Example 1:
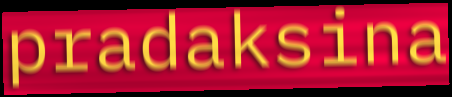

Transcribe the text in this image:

pradaksina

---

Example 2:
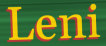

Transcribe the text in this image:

Leni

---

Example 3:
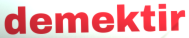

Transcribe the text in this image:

demektir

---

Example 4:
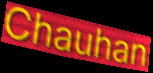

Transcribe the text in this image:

Chauhan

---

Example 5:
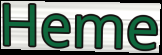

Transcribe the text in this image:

Heme